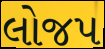
લોજપ